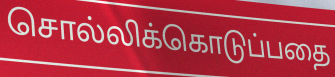
சொல்லிக்கொடுப்பதை